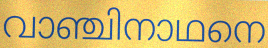
വാഞ്ചിനാഥനെ